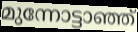
മുന്നോട്ടാഞ്ഞ്